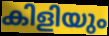
കിളിയും